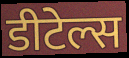
डीटेल्‍स